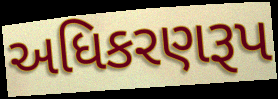
અધિકરણરૂપ